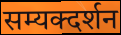
सम्यक्दर्शन